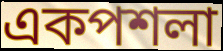
একপশলা